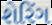
શેરિંગ